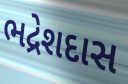
ભદ્રેશદાસ